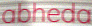
abheda